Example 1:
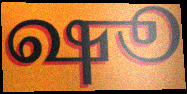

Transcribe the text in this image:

ஷூ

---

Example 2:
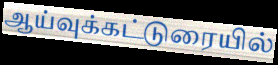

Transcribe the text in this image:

ஆய்வுக்கட்டுரையில்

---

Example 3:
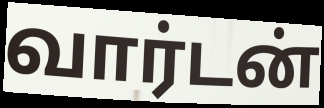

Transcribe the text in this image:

வார்டன்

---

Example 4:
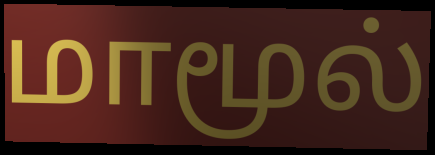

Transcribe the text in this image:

மாமூல்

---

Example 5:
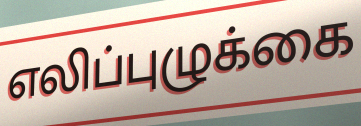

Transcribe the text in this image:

எலிப்புழுக்கை